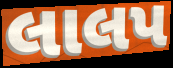
લાલપ